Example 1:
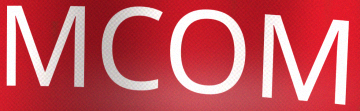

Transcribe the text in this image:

MCOM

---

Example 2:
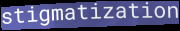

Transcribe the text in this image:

stigmatization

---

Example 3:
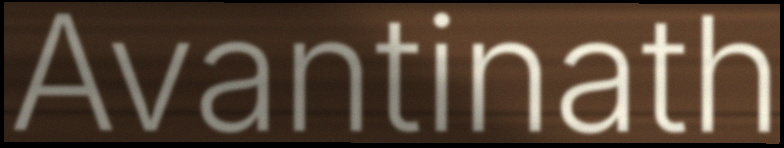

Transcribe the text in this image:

Avantinath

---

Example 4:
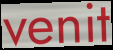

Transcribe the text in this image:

venit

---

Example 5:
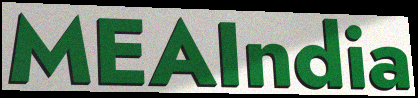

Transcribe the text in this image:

MEAIndia